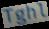
Tghl